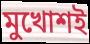
মুখোশই